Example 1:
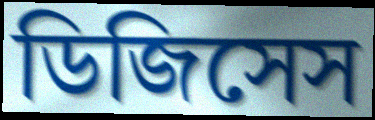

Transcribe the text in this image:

ডিজিসেস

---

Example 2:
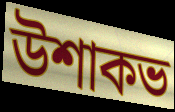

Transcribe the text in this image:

উশাকভ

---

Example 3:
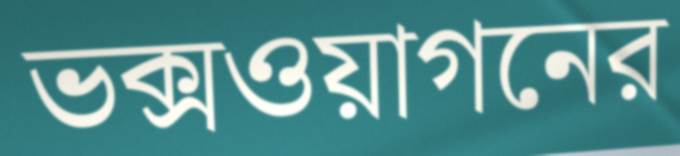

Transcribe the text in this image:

ভক্সওয়াগনের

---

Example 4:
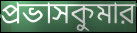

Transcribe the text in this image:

প্রভাসকুমার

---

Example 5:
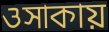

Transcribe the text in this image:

ওসাকায়